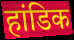
हांडिक